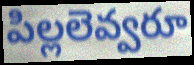
పిల్లలెవ్వరూ